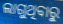
ଲାଗୁଥିବାରୁ